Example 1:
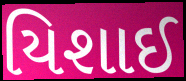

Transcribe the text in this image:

યિશાઈ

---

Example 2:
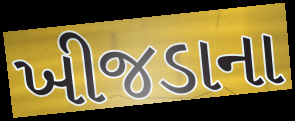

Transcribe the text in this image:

ખીજડાના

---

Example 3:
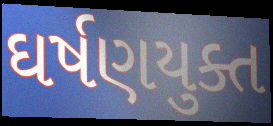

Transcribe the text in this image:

ઘર્ષણયુક્ત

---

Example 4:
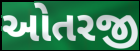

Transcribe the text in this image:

ઓતરજી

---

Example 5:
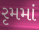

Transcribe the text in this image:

રૃમમાં